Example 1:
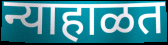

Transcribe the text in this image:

न्याहाळत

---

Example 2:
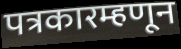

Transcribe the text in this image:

पत्रकारम्हणून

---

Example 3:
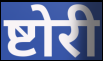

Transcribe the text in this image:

ष्टोरी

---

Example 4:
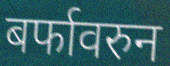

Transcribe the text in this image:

बर्फावरुन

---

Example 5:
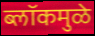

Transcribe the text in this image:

ब्लॉकमुळे